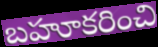
బహూకరించి